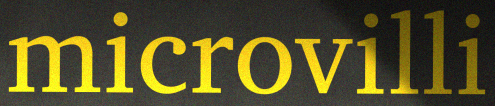
microvilli